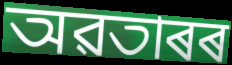
অৱতাৰৰ